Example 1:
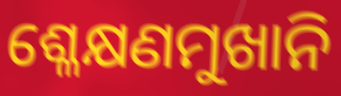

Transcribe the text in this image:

ଶ୍ଳେକ୍ଷଣମୁଖାନି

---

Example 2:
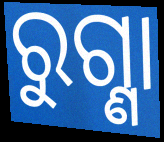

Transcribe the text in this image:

ରୁଗ୍ଣା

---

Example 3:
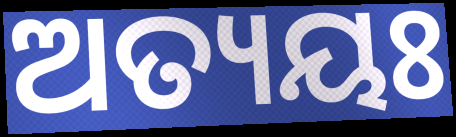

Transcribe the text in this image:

ଅତ୍ୟୟଃ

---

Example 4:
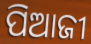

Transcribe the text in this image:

ପିଆଜୀ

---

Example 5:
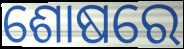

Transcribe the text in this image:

ଶୋଷରେ